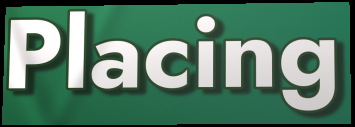
Placing